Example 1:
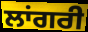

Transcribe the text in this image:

ਲਾਂਗਰੀ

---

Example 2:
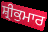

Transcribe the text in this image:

ਸ਼੍ਰੀਕੁਮਾਰ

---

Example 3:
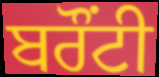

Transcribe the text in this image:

ਬਰੌਂਟੀ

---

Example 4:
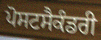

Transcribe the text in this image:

ਪੋਸਟਸੈਕੰਡਰੀ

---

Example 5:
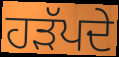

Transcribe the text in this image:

ਹੜੱਪਦੇ